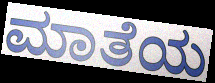
ಮಾತೆಯ